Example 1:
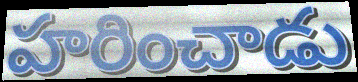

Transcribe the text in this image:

హరించాడు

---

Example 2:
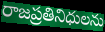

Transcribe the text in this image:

రాజప్రతినిధులను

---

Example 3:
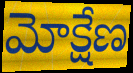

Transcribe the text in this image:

మోక్షేణ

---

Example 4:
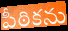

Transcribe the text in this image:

పీఠికను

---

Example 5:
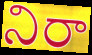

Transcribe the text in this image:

నిరా